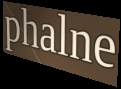
phalne